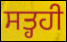
ਸਤ੍ਹਹੀ